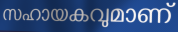
സഹായകവുമാണ്